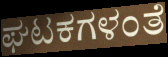
ಘಟಕಗಳಂತೆ